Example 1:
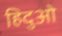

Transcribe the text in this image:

हिदुओ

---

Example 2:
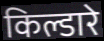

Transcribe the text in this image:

किल्डारे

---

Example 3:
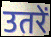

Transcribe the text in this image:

उतरें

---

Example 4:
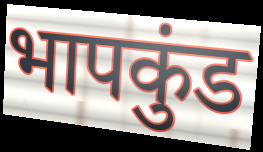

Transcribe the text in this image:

भापकुंड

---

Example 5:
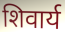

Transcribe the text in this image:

शिवार्य